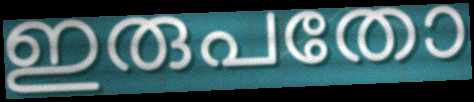
ഇരുപതോ